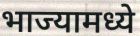
भाज्यामध्ये